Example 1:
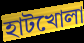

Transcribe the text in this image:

হাটখোলা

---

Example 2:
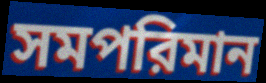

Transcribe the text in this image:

সমপরিমান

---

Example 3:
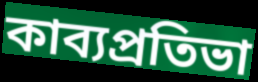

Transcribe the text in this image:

কাব্যপ্রতিভা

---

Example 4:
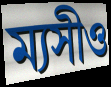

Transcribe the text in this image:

ম্যসীও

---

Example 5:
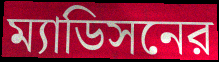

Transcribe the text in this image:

ম্যাডিসনের